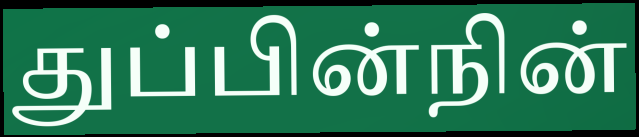
துப்பின்நின்